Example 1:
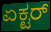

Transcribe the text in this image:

ಏಕ್ಟರ್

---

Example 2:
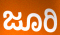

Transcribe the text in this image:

ಜೂರಿ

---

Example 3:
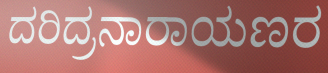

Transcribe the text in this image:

ದರಿದ್ರನಾರಾಯಣರ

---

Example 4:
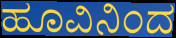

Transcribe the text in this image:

ಹೂವಿನಿಂದ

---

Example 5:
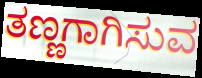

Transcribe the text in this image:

ತಣ್ಣಗಾಗಿಸುವ